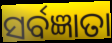
ସର୍ବଜ୍ଞାତା